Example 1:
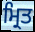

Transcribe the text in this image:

ਮ੍ਰਿਤ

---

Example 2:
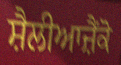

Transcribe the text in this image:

ਸ਼ੈਲੀਆਜ਼ੈਂਕੋ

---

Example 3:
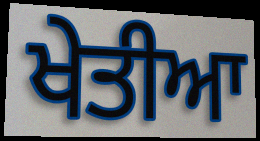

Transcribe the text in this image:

ਖੇਤੀਆ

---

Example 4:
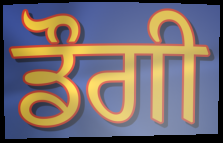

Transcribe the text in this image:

ਡੌਗੀ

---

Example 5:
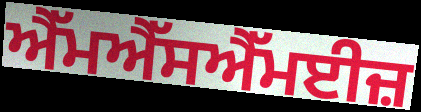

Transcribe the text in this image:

ਐੱਮਐੱਸਐੱਮਈਜ਼